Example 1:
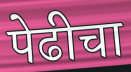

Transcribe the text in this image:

पेढीचा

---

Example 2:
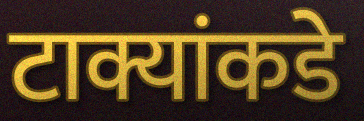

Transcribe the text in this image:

टाक्यांकडे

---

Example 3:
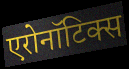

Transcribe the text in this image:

एरोनॉटिक्स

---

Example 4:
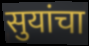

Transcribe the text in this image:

सुयांचा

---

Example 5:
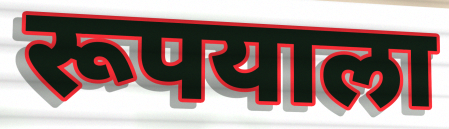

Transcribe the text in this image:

रूपयाला